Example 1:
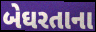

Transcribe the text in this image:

બેઘરતાના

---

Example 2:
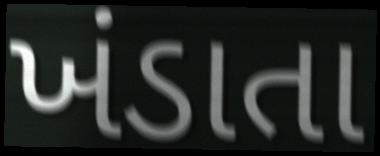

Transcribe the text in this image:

ખંડાતા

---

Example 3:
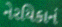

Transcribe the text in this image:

નેરયિકાનં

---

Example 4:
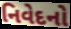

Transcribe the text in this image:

નિવેદનો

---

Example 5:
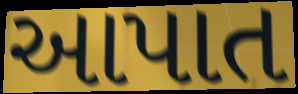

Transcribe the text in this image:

આપાત